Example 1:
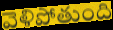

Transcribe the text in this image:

వెళిపోతుంది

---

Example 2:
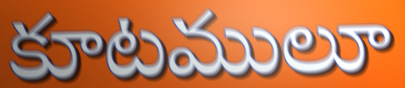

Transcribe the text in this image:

కూటములూ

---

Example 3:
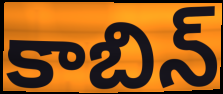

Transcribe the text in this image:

కాబిన్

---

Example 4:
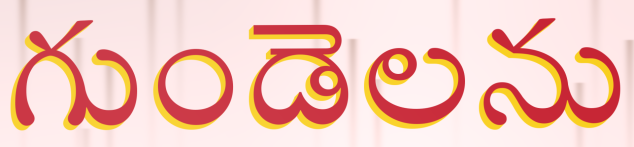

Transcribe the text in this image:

గుండెలను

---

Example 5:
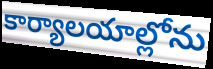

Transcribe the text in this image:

కార్యాలయాల్లోను